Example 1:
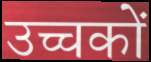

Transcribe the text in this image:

उच्चकों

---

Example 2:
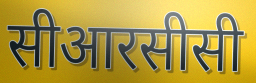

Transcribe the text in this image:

सीआरसीसी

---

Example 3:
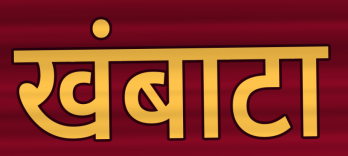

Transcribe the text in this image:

खंबाटा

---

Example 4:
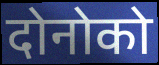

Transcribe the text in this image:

दोनोको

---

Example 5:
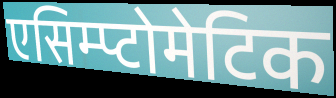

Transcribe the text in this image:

एसिम्प्टोमेटिक